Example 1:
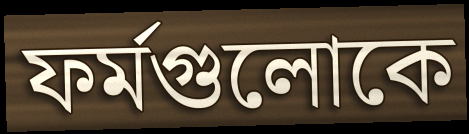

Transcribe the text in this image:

ফর্মগুলোকে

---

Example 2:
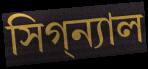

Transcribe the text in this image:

সিগ্‌ন্যাল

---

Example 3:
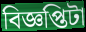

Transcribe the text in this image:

বিজ্ঞপ্তিটা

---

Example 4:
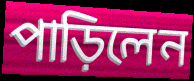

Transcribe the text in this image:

পাড়িলেন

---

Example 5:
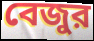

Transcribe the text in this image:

বেজুর